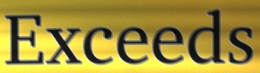
Exceeds